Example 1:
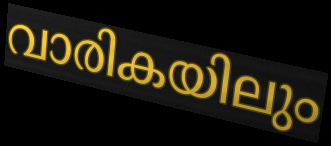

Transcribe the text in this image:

വാരികയിലും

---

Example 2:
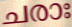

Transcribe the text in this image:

ചരാഃ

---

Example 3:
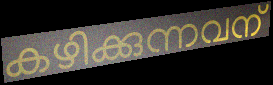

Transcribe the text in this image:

കഴിക്കുന്നവന്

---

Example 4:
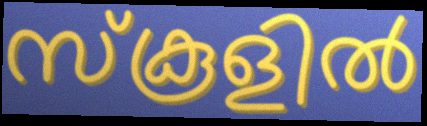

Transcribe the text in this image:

സ്കൂളിൽ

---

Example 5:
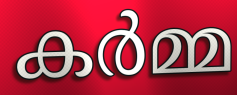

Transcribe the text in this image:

കർമ്മ